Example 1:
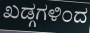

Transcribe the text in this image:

ಖಡ್ಗಗಳಿಂದ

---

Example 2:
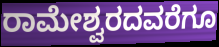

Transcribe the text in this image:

ರಾಮೇಶ್ವರದವರೆಗೂ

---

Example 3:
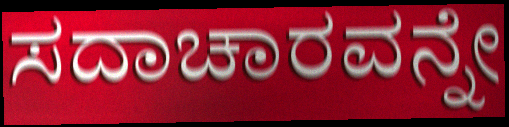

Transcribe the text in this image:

ಸದಾಚಾರವನ್ನೇ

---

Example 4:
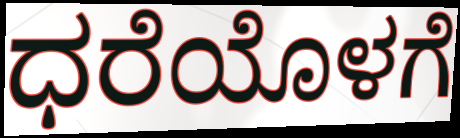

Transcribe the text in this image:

ಧರೆಯೊಳಗೆ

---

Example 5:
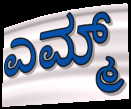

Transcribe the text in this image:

ಎಮ್ಮ್